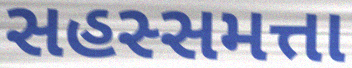
સહસ્સમત્તા